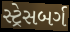
સ્ટ્રેસબર્ગ